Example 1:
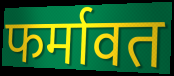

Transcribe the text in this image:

फर्मावत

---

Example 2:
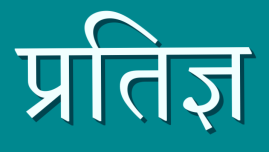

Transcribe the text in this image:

प्रतिज्ञ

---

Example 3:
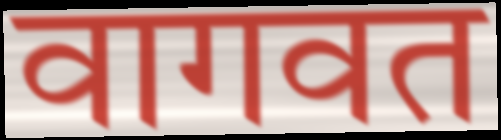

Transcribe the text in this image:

वागवत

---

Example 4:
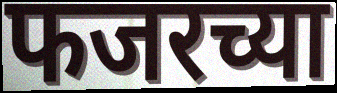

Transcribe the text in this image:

फजरच्या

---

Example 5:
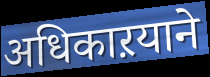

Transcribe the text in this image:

अधिकाऱयाने